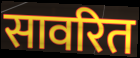
सावरित